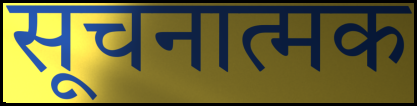
सूचनात्मक